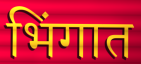
भिंगात